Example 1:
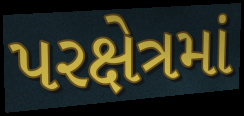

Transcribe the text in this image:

પરક્ષેત્રમાં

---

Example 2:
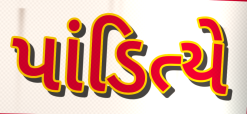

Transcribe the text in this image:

પાંડિત્યે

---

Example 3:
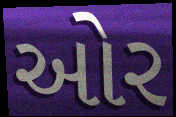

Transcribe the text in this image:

ઓર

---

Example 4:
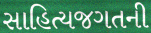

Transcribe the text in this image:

સાહિત્યજગતની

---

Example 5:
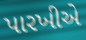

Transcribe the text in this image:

પારખીએ